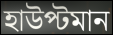
হাউপ্টমান